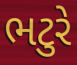
ભટુરે